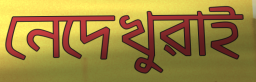
নেদেখুৱাই